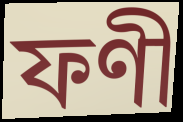
ফণী